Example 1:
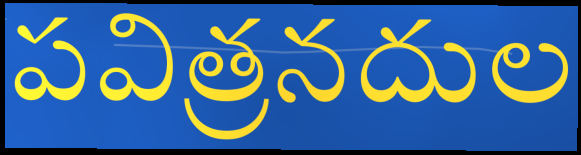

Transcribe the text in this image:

పవిత్రనదుల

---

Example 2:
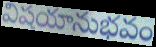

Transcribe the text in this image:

విషయానుభవం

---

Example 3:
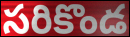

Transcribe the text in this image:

సరికొండ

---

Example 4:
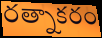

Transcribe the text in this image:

రత్నాకరం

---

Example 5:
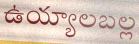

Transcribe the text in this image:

ఉయ్యాలబల్ల